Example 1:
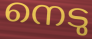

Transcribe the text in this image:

നെടു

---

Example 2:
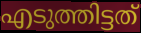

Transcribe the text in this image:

എടുത്തിട്ടത്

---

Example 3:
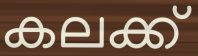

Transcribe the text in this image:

കലക്ക്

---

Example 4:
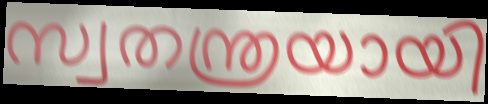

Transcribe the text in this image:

സ്വതന്ത്രയായി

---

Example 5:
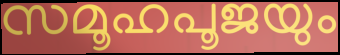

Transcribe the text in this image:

സമൂഹപൂജയും